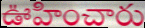
ఊహించారు